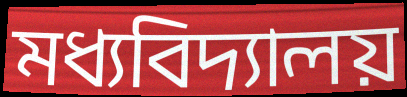
মধ্যবিদ্যালয়